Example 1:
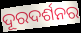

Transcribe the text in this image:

ଦୂରଦର୍ଶନର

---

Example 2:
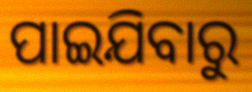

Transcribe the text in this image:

ପାଇଯିବାରୁ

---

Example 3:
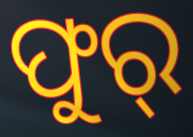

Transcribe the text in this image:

ଫୁର୍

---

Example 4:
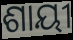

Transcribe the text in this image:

ଶାୟୀ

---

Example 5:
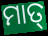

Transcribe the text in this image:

ମାତ୍